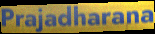
Prajadharana